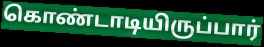
கொண்டாடியிருப்பார்